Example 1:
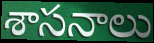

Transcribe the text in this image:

శాసనాలు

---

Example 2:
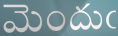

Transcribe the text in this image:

మెందుఁ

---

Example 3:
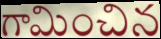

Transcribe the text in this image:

గామించిన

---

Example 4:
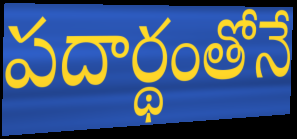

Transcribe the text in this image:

పదార్థంతోనే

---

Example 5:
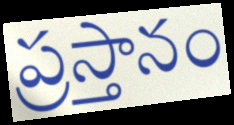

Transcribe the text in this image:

ప్రస్తానం